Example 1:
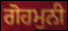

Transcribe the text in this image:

ਗੋਹਮੁਨੀ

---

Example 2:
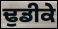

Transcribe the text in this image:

ਢੁਡੀਕੇ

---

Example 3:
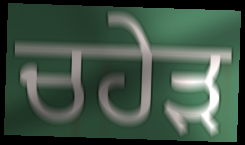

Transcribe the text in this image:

ਚਹੇੜ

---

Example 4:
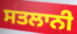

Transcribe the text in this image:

ਸਤਲਾਨੀ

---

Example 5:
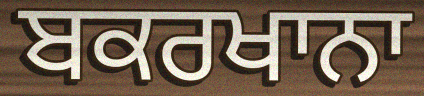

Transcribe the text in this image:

ਬਕਰਖਾਨਾ